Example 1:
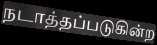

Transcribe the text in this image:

நடாத்தப்படுகின்ற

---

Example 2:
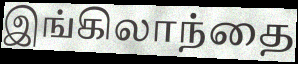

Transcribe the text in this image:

இங்கிலாந்தை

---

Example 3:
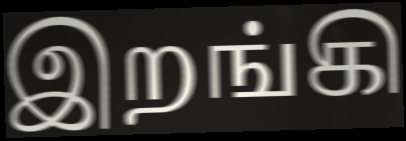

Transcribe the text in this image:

இறங்கி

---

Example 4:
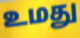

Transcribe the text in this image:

உமது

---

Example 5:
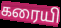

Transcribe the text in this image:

கரையி